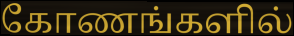
கோணங்களில்